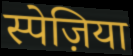
स्पेज़िया